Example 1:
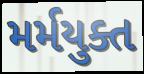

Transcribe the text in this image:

મર્મયુક્ત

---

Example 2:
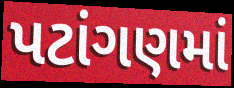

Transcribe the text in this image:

પટાંગણમાં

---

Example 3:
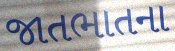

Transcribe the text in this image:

જાતભાતના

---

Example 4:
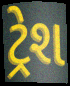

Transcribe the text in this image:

ટ્રેશ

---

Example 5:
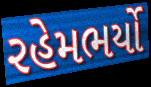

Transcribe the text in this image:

રહેમભર્યો